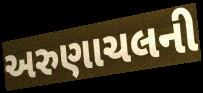
અરુણાચલની